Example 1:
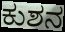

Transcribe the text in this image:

ಕುಶನ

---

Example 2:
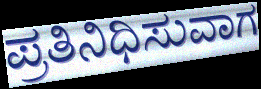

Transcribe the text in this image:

ಪ್ರತಿನಿಧಿಸುವಾಗ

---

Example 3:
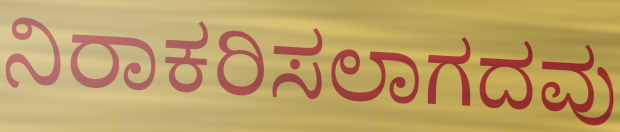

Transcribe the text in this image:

ನಿರಾಕರಿಸಲಾಗದವು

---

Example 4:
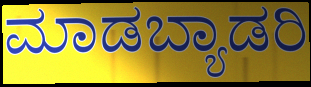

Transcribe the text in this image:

ಮಾಡಬ್ಯಾಡರಿ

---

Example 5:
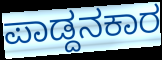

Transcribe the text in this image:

ಪಾಡ್ದನಕಾರ